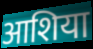
आशिया